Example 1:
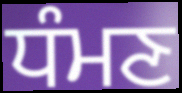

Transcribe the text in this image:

ਧੰਮਣ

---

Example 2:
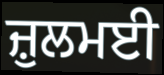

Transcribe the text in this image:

ਜ਼ੁਲਮਈ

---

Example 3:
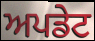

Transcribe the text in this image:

ਅਪਡੇਟ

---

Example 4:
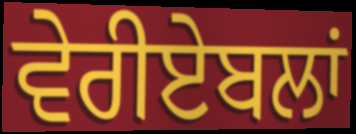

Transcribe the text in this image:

ਵੇਰੀਏਬਲਾਂ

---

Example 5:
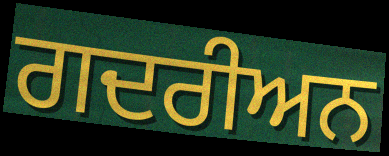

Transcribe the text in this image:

ਗਦਰੀਅਨ